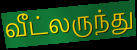
வீட்லருந்து